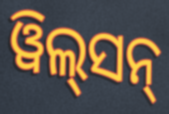
ୱିଲ୍‌ସନ୍